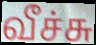
வீச்சு